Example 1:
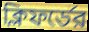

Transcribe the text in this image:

ক্লিফর্ডের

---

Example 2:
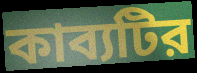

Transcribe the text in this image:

কাব্যটির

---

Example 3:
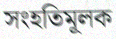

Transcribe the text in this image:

সংহতিমূলক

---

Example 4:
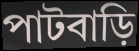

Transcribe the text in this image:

পাটবাড়ি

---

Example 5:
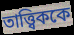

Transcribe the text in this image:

তাত্ত্বিককে